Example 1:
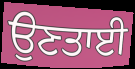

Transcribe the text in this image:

ਉਣਤਾਈ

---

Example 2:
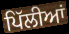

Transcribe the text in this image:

ਪਿੱਲੀਆਂ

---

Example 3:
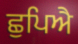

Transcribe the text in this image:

ਛੁਪਿਐ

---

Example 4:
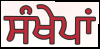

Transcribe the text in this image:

ਸੰਖੇਪਾਂ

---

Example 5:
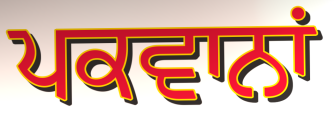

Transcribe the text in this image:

ਪਕਵਾਨਾਂ